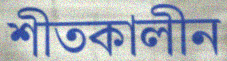
শীতকালীন